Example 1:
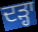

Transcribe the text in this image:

ਦੜ੍ਹਾ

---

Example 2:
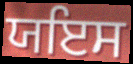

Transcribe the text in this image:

ਯਇਸ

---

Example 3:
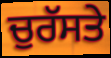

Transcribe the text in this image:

ਚੁਰੱਸਤੇ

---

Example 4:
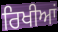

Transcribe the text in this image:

ਰਿਖੀਆਂ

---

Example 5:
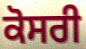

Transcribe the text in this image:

ਕੋਸਰੀ